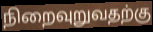
நிறைவுறுவதற்கு